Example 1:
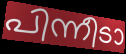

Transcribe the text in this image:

പിന്നീടാ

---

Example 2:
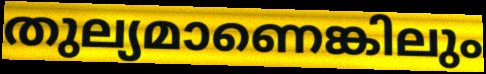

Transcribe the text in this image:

തുല്യമാണെങ്കിലും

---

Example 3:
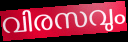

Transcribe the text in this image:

വിരസവും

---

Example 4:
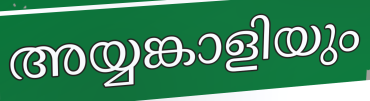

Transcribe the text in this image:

അയ്യങ്കാളിയും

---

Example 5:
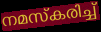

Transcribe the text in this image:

നമസ്‌കരിച്ച്